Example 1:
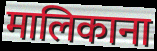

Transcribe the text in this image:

मालिकाना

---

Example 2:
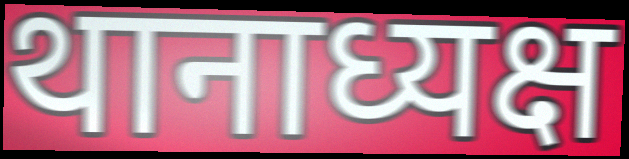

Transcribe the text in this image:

थानाध्यक्ष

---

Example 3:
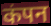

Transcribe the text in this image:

कंपन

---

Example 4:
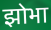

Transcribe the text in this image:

झोभा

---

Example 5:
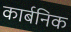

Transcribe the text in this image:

कार्बनिक